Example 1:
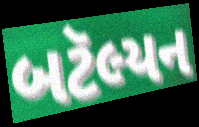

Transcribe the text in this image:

બટૅલ્યન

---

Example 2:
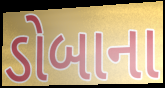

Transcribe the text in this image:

ડોબાના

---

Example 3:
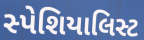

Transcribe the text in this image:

સ્પેશિયાલિસ્ટ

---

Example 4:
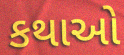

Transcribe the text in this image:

કથાઓ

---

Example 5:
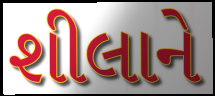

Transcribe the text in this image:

શીલાને